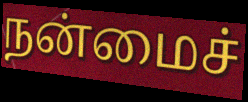
நன்மைச்